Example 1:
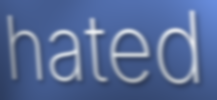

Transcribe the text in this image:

hated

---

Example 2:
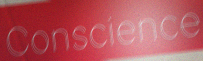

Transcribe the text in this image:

Conscience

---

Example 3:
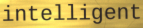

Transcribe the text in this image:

intelligent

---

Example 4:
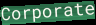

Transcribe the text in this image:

Corporate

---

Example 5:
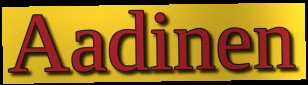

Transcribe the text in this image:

Aadinen